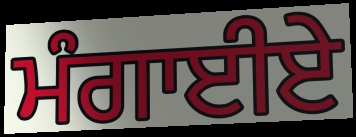
ਮੰਗਾਈਏ